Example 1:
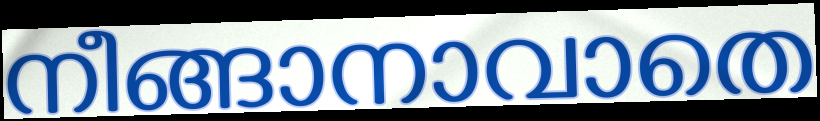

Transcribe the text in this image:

നീങ്ങാനാവാതെ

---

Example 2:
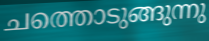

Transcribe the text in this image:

ചത്തൊടുങ്ങുന്നു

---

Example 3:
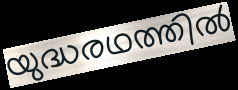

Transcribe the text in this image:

യുദ്ധരഥത്തിൽ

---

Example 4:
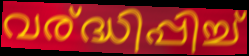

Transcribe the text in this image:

വര്ദ്ധിപ്പിച്ച്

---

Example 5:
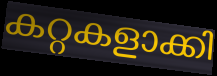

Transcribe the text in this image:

കറ്റകളാക്കി